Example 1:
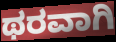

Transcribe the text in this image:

ಥರವಾಗಿ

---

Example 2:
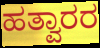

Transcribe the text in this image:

ಹತ್ವಾರರ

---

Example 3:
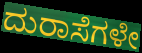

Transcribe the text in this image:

ದುರಾಸೆಗಳೇ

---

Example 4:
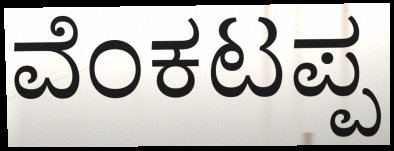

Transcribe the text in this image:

ವೆಂಕಟಪ್ಪ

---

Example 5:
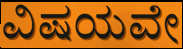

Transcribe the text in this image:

ವಿಷಯವೇ